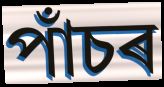
পাঁচৰ